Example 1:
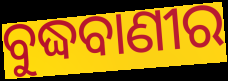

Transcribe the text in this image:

ବୁଦ୍ଧବାଣୀର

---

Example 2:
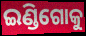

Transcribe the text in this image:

ଇଣ୍ଡିଗୋକୁ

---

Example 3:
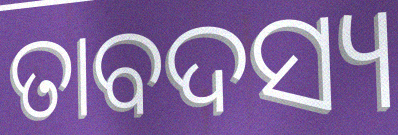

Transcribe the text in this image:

ତାବଦସ୍ୟ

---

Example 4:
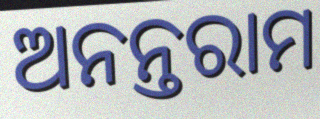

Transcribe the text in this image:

ଅନନ୍ତରାମ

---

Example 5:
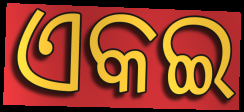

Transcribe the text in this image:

ଏକଇ